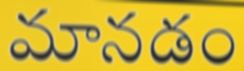
మానడం